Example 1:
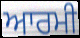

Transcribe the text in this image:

ਆਰਮੀ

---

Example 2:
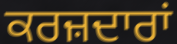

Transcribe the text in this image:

ਕਰਜ਼ਦਾਰਾਂ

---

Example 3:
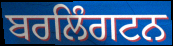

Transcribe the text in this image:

ਬਰਲਿੰਗਟਨ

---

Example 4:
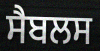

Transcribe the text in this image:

ਸੈਬਲਸ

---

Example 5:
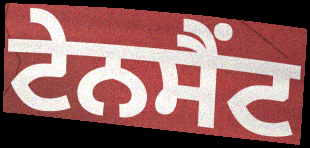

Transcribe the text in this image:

ਟੇਨਸੈਂਟ